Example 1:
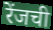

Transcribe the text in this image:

रेंजची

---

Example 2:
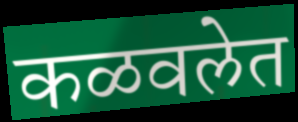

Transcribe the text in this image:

कळवलेत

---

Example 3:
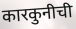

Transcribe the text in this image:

कारकुनीची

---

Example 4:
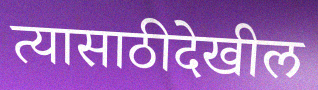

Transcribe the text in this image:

त्यासाठीदेखील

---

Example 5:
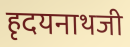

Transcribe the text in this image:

हृदयनाथजी